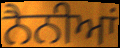
ਨੈਨੀਆਂ